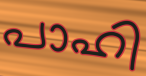
പാഹി